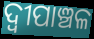
ଦ୍ୱୀପାଞ୍ଚଳ